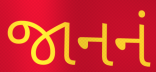
જાનનં